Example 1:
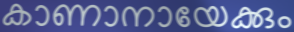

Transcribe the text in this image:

കാണാനായേക്കും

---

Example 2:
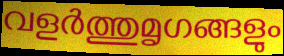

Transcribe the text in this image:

വളർത്തുമൃഗങ്ങളും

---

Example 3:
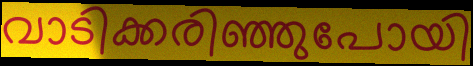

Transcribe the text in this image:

വാടിക്കരിഞ്ഞുപോയി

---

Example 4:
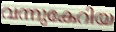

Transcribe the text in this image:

വന്നുകേറിയ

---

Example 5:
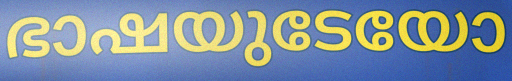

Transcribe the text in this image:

ഭാഷയുടേയോ